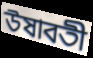
উষাবতী